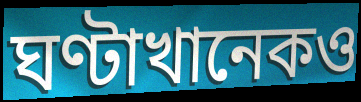
ঘণ্টাখানেকও